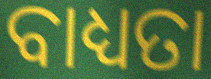
ବାଧ୍ୟତା